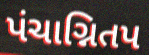
પંચાગ્નિતપ